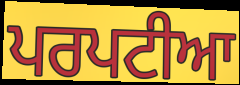
ਪਰਪਟੀਆ